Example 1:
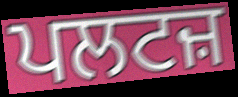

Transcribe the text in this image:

ਪਲਟਜ਼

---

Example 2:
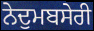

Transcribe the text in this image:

ਨੇਦੁਮਬਸੇਰੀ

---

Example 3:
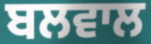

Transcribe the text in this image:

ਬਲਵਾਲ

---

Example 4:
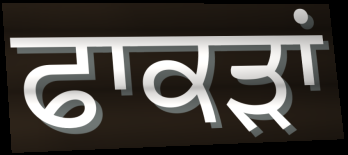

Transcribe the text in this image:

ਫਾਕੜਾਂ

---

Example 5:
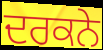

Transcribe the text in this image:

ਦਰਕਨੇ